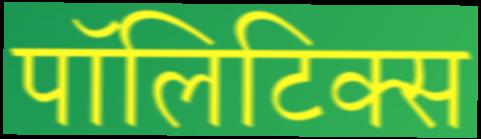
पॉलिटिक्स